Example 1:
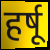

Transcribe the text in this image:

हर्षू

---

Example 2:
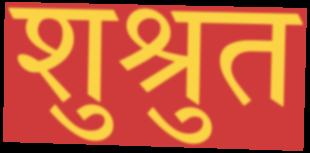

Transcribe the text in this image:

शुश्रुत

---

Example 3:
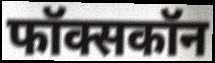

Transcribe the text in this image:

फॉक्सकॉन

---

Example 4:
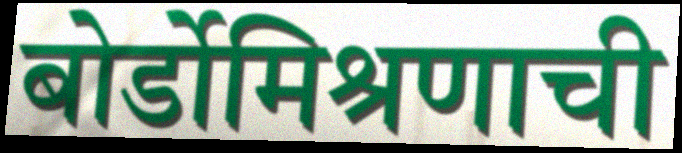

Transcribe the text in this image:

बोर्डोमिश्रणाची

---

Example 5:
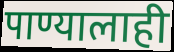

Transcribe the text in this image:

पाण्यालाही